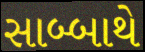
સાબ્બાથે